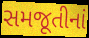
સમજૂતીનાં